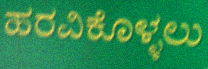
ಹರವಿಕೊಳ್ಳಲು